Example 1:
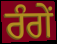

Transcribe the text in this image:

ਰੰਗੇਂ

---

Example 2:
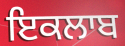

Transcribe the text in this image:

ਇਕਲਾਬ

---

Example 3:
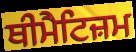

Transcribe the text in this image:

ਥੀਮੈਟਿਜ਼ਮ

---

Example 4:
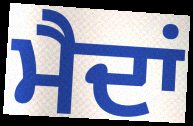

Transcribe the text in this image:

ਮੈਦਾਂ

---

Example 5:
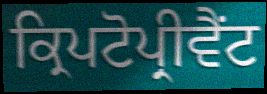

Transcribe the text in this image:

ਕ੍ਰਿਪਟੋਪ੍ਰੀਵੈਂਟ